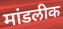
मांडलीक